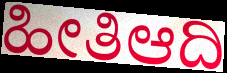
ಹೀತಿಆದಿ